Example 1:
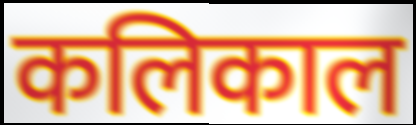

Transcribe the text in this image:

कलिकाल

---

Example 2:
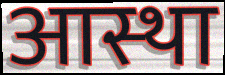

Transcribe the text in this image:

आस्था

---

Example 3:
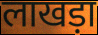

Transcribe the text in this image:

लाखड़ा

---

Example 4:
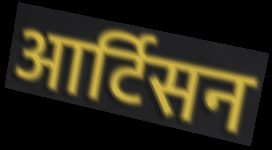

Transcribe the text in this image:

आर्टिसन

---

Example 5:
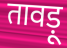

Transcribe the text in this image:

तावड़ू